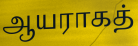
ஆயராகத்